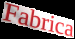
Fabrica